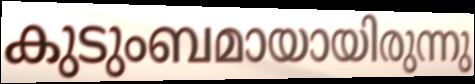
കുടുംബമായായിരുന്നു